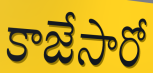
కాజేసారో